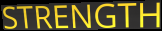
STRENGTH